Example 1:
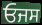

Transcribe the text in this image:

ਓਜਸ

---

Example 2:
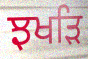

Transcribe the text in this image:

ਝਖੜਿ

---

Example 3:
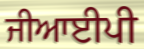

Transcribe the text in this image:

ਜੀਆਈਪੀ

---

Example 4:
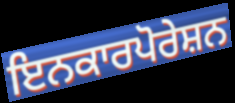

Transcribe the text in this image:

ਇਨਕਾਰਪੋਰੇਸ਼ਨ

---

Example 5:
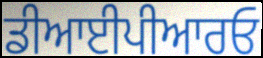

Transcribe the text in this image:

ਡੀਆਈਪੀਆਰਓ